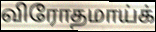
விரோதமாய்க்